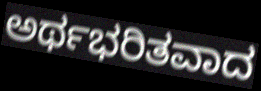
ಅರ್ಥಭರಿತವಾದ